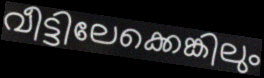
വീട്ടിലേക്കെങ്കിലും